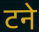
टने